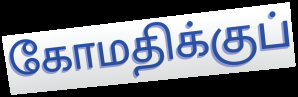
கோமதிக்குப்